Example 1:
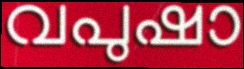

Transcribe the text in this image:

വപുഷാ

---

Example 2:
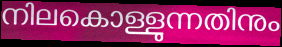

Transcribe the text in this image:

നിലകൊള്ളുന്നതിനും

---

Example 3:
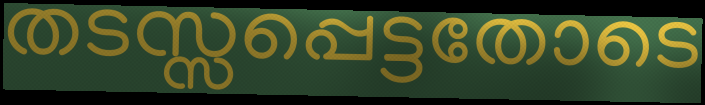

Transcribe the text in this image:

തടസ്സപ്പെട്ടതോടെ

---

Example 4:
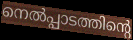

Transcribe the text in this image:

നെൽപ്പാടത്തിന്റെ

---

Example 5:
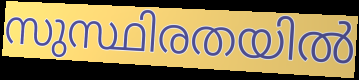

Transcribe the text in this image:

സുസ്ഥിരതയിൽ